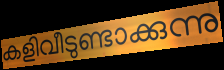
കളിവീടുണ്ടാക്കുന്നു